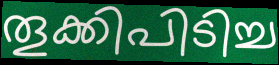
തൂക്കിപിടിച്ച